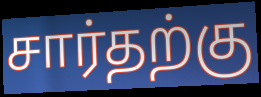
சார்தற்கு